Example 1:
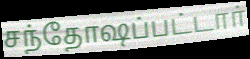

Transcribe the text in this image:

சந்தோஷப்பட்டார்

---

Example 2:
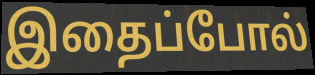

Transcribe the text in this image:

இதைப்போல்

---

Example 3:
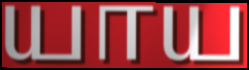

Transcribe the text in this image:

யாய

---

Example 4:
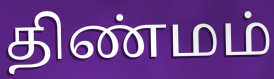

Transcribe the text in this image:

திண்மம்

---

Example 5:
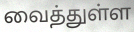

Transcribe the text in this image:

வைத்துள்ள